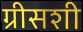
ग्रीसशी